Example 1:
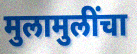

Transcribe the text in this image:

मुलामुलींचा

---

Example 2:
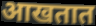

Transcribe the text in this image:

आखतात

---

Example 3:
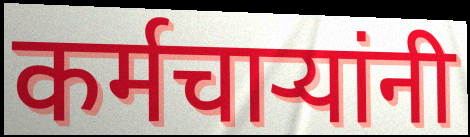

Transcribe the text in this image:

कर्मचाऱ्यांनी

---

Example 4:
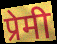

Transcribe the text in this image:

प्रेमी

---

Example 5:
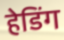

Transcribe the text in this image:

हेडिंग